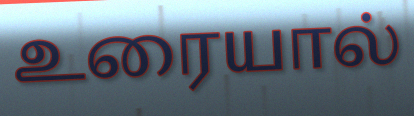
உரையால்